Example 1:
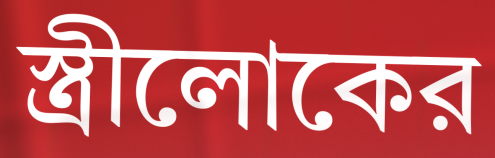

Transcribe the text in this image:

স্ত্রীলোকের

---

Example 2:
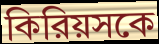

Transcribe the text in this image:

কিরিয়সকে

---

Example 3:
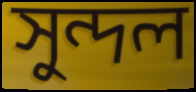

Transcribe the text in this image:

সুন্দল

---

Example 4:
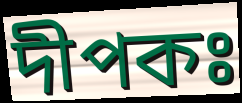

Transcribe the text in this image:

দীপকঃ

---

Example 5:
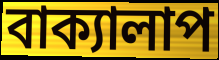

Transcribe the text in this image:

বাক্যালাপ